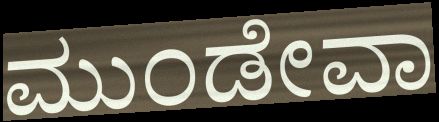
ಮುಂಡೇವಾ